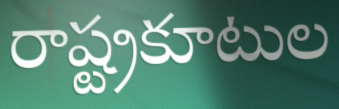
రాష్ట్రకూటుల